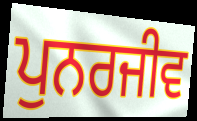
ਪੁਨਰਜੀਵ